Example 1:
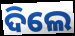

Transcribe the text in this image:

ଦିଲେ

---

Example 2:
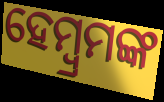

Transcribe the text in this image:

ହେମ୍ବ୍ରମଙ୍କ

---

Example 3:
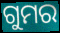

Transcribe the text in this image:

ଗୁମର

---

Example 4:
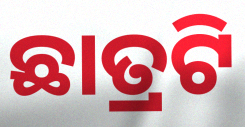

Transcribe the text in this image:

ଛାତ୍ରଟି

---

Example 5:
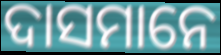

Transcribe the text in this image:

ଦାସମାନେ